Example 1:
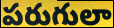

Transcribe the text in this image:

పరుగులా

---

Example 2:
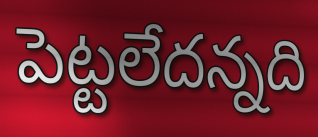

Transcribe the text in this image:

పెట్టలేదన్నది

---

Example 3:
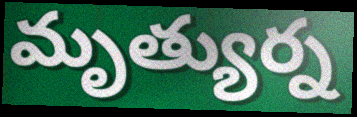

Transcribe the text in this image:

మృత్యుర్న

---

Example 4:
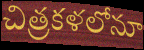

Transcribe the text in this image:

చిత్రకళలోనూ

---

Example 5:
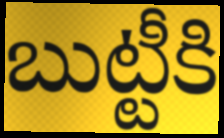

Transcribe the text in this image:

బుట్టీకి